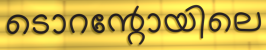
ടൊറന്റോയിലെ